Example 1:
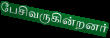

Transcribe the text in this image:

பேசிவருகின்றனர்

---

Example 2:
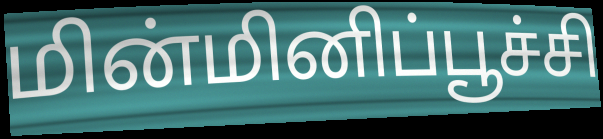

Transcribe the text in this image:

மின்மினிப்பூச்சி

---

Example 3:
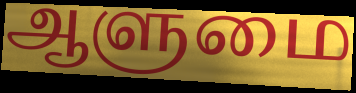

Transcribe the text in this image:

ஆளுமை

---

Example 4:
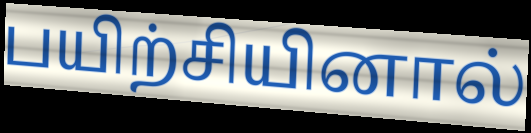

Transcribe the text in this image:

பயிற்சியினால்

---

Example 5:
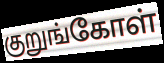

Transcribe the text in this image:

குறுங்கோள்